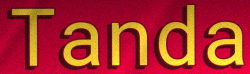
Tanda